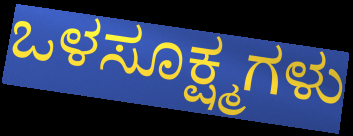
ಒಳಸೂಕ್ಷ್ಮಗಳು